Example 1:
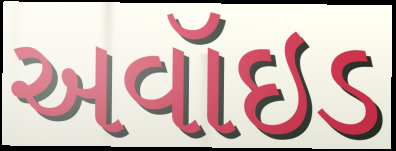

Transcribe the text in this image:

અવૉઇડ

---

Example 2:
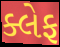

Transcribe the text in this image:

ક્લેફ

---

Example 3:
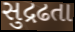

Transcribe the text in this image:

સુદ્રઢતા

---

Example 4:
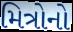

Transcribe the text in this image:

મિત્રોનો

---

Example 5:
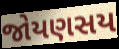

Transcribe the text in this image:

જોયણસય